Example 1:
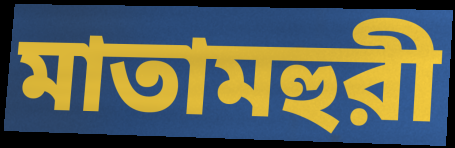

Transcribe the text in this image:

মাতামহুরী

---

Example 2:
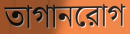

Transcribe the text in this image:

তাগানরোগ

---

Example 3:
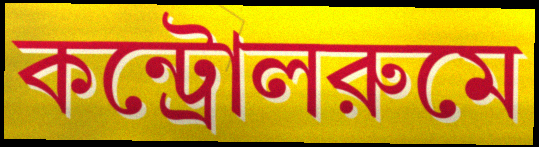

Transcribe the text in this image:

কন্ট্রোলরুমে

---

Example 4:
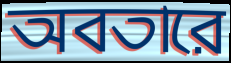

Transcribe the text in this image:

অবতারে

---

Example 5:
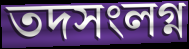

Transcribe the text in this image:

তদসংলগ্ন